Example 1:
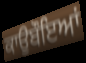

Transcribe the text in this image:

ਕਾਉਬੌਇਆਂ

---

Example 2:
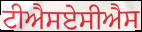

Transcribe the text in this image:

ਟੀਐਸਏਸੀਐਸ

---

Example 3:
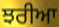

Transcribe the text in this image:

ਝਰੀਆ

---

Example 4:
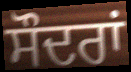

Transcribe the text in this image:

ਸੌਦਰਾਂ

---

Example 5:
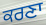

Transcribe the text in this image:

ਕਰਣਾ